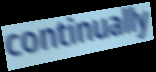
continually